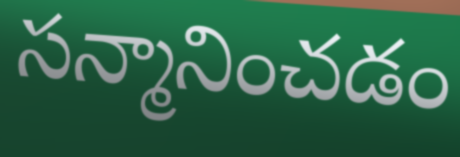
సన్మానించడం